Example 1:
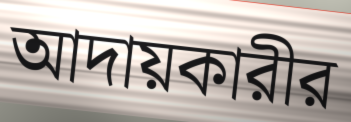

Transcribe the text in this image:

আদায়কারীর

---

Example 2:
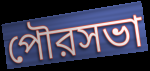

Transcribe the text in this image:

পৌরসভা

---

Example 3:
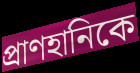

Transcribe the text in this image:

প্রাণহানিকে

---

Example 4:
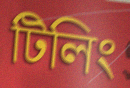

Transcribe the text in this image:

টিলিং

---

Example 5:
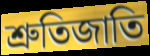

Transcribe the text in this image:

শ্রুতিজাতি